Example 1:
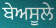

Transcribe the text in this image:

ਬੇਅਸੂਲੇ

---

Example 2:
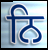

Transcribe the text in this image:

ਨਿ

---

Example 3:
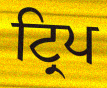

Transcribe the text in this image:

ਟ੍ਰਿਪ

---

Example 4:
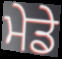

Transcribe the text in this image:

ਮੇਡੇ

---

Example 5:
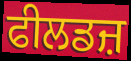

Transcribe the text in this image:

ਫੀਲਡਜ਼